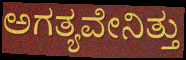
ಅಗತ್ಯವೇನಿತ್ತು